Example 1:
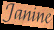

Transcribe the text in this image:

Janine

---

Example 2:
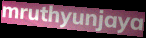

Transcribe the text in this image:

mruthyunjaya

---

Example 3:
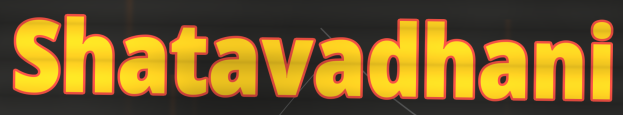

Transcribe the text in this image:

Shatavadhani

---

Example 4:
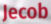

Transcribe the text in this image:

Jecob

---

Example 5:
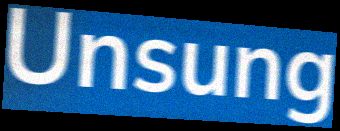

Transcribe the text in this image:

Unsung